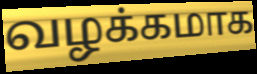
வழக்கமாக